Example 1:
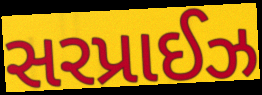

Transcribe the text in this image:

સરપ્રાઈઝ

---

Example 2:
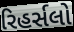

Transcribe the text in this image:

રિહર્સલો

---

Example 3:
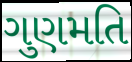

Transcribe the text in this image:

ગુણમતિ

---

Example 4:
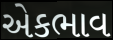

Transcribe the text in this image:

એકભાવ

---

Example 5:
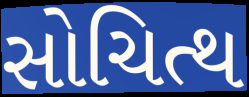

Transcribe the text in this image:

સોચિત્થ